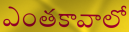
ఎంతకావాలో